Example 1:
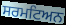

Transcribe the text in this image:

ਸਰਮਟਿਅਨ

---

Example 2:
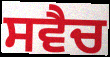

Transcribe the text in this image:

ਸਵੈਚ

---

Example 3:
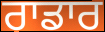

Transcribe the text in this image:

ਰਾਡਾਰ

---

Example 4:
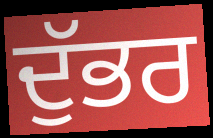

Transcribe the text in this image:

ਦੁੱਭਰ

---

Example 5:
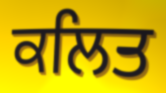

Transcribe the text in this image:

ਕਲਿਤ